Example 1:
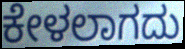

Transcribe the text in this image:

ಕೇಳಲಾಗದು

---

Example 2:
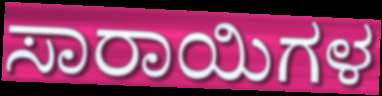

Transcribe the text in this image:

ಸಾರಾಯಿಗಳ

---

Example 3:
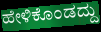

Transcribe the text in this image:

ಹೇಳಿಕೊಂಡದ್ದು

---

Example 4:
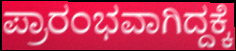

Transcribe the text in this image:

ಪ್ರಾರಂಭವಾಗಿದ್ದಕ್ಕೆ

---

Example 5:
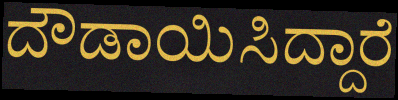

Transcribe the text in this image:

ದೌಡಾಯಿಸಿದ್ದಾರೆ